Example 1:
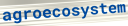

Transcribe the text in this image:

agroecosystem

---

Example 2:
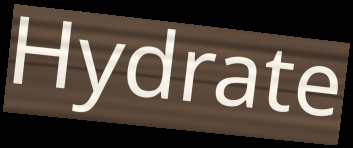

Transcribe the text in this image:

Hydrate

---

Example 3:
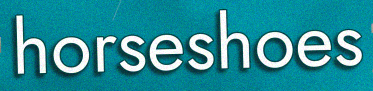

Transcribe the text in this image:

horseshoes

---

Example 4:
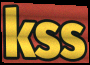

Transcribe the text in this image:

kss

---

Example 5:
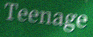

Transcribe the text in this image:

Teenage